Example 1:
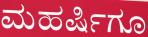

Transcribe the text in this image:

ಮಹರ್ಷಿಗೂ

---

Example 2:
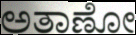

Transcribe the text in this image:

ಅತಾಣೋ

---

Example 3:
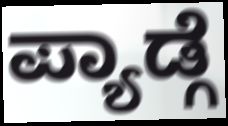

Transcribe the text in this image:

ಪ್ಯಾಡ್ಗೆ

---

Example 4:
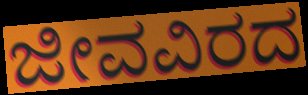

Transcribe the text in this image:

ಜೀವವಿರದ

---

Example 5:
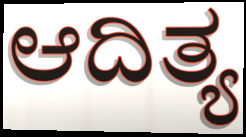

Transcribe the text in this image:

ಆದಿತ್ಯ